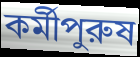
কর্মীপুরুষ